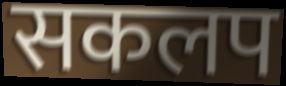
सकलप